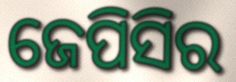
ଜେପିସିର